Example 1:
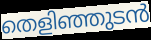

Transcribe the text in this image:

തെളിഞ്ഞുടൻ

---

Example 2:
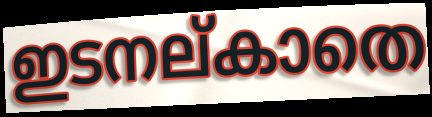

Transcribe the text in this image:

ഇടനല്കാതെ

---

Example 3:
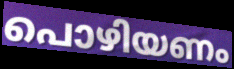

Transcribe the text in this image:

പൊഴിയണം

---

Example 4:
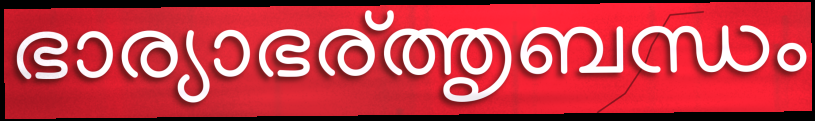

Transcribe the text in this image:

ഭാര്യാഭര്ത്തൃബന്ധം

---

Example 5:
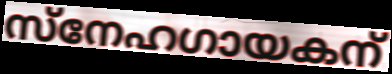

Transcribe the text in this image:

സ്നേഹഗായകന്